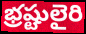
భ్రష్టులైరి